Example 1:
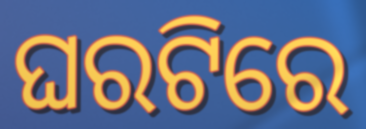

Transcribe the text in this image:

ଘରଟିରେ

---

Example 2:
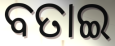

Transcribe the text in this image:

ବତାଇ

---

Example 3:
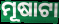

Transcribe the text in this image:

ମୂଷାଟା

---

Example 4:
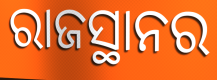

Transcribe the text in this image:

ରାଜସ୍ଥାନର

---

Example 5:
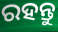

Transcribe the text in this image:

ରହନ୍ତୁ